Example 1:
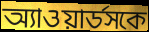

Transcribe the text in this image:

অ্যাওয়ার্ডসকে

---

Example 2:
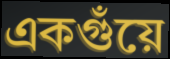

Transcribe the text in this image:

একগুঁয়ে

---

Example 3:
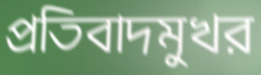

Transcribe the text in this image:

প্রতিবাদমুখর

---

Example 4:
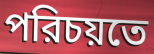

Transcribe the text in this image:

পরিচয়তে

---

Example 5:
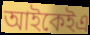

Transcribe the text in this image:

আইকেইএ